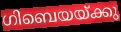
ഗിബെയയ്ക്കു